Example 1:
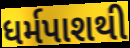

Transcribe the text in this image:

ધર્મપાશથી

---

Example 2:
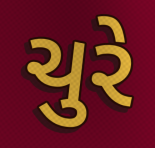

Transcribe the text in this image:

ચુરે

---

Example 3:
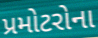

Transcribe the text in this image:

પ્રમોટરોના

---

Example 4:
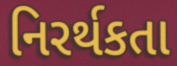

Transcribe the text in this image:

નિરર્થકતા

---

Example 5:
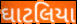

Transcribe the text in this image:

ઘાટલિયા